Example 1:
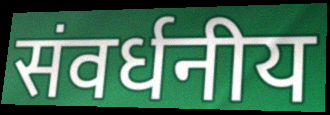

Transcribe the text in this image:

संवर्धनीय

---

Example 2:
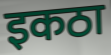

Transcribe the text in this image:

इकठा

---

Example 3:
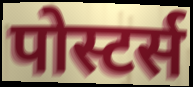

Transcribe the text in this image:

पोस्टर्स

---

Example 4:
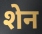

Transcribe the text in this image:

शेन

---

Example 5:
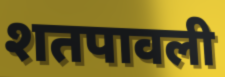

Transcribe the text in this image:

शतपावली